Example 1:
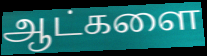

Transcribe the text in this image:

ஆட்களை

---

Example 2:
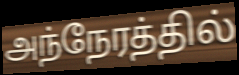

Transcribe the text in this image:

அந்நேரத்தில்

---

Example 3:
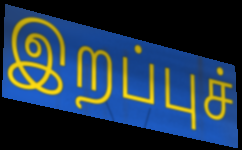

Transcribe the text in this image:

இறப்புச்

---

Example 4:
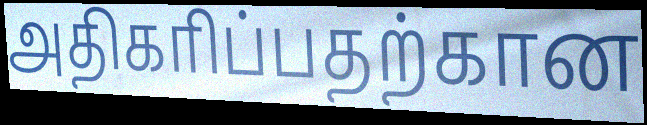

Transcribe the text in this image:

அதிகரிப்பதற்கான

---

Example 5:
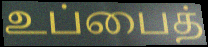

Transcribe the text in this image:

உப்பைத்